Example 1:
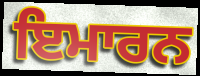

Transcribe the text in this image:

ਇਮਾਰਨ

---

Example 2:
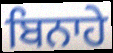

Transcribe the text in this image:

ਬਿਨਾਹੇ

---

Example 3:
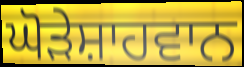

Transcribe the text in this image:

ਘੋੜੇਸ਼ਾਹਵਾਨ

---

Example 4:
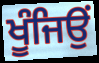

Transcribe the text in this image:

ਖੂੰਜਿਉਂ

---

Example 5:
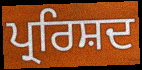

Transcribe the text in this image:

ਪ੍ਰਰਿਸ਼ਦ